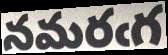
నమరఁగ